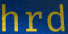
hrd